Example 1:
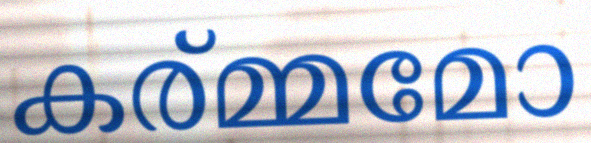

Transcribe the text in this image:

കര്മ്മമോ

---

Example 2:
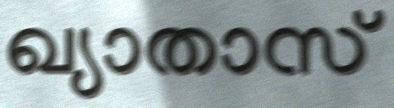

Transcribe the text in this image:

ഖ്യാതാസ്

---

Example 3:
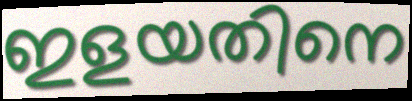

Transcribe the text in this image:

ഇളയതിനെ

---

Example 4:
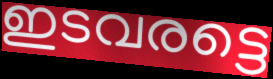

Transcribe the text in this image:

ഇടവരട്ടെ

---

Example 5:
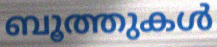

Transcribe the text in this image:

ബൂത്തുകൾ